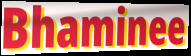
Bhaminee